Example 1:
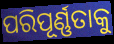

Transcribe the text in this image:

ପରିପୂର୍ଣ୍ଣତାକୁ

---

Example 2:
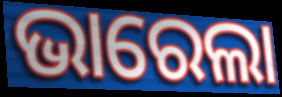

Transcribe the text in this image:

ଭାରେଲା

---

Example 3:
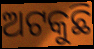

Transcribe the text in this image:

ଅଟକୁଛି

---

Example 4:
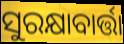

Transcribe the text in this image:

ସୁରକ୍ଷାବାର୍ତ୍ତା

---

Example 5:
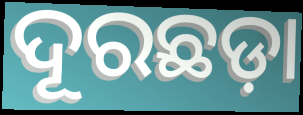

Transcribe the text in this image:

ଦୂରଛଡ଼ା